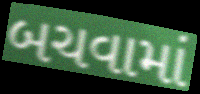
બચવામાં